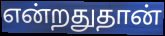
என்றதுதான்